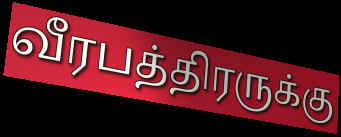
வீரபத்திரருக்கு